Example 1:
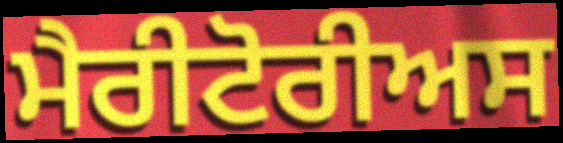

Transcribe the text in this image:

ਮੈਰੀਟੋਰੀਅਸ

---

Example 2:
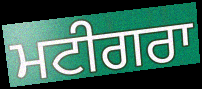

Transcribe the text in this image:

ਮਟੀਗਰਾ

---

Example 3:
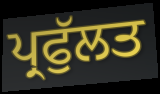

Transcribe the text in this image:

ਪ੍ਰਫੁੱਲਤ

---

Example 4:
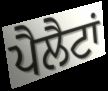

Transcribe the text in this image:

ਪੈਲੈਟਾਂ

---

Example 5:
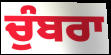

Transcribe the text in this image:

ਚੁੰਬਰਾ